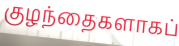
குழந்தைகளாகப்